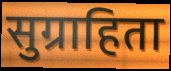
सुग्राहिता